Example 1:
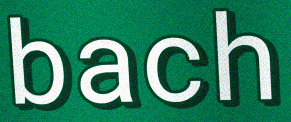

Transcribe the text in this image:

bach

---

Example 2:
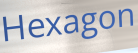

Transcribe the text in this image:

Hexagon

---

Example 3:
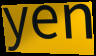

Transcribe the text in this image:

yen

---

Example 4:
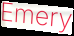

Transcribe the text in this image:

Emery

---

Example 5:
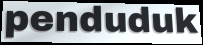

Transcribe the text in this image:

penduduk